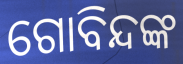
ଗୋବିନ୍ଦଙ୍କ